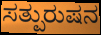
ಸತ್ಪುರುಷನ